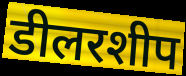
डीलरशीप